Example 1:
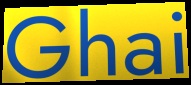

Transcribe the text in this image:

Ghai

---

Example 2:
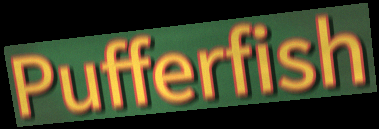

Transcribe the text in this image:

Pufferfish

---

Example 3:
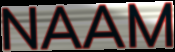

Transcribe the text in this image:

NAAM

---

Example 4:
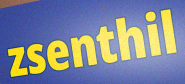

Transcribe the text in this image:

zsenthil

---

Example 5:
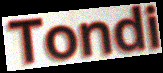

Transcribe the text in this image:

Tondi